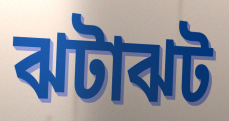
ঝটাঝট